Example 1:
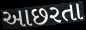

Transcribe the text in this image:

આછરતા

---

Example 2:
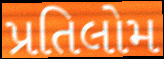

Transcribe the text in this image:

પ્રતિલોમ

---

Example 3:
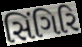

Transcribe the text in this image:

સિંગિરિ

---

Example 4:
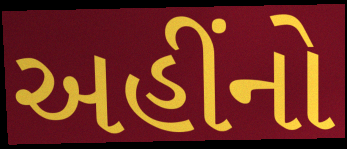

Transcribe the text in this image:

અહીંનો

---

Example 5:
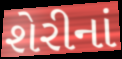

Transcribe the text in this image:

શેરીનાં